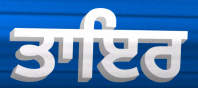
ਤਾਇਰ